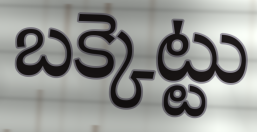
బక్కెట్టు